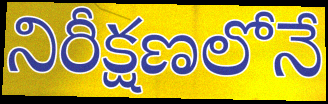
నిరీక్షణలోనే